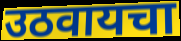
उठवायचा